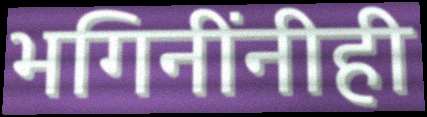
भगिनींनीही